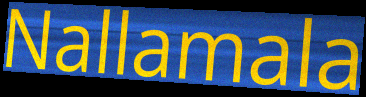
Nallamala